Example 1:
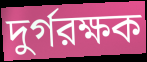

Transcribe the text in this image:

দুর্গরক্ষক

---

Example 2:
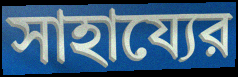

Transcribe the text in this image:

সাহায্যের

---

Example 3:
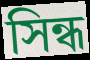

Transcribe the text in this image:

সিন্ধ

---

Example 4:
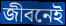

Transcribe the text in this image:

জীবনেই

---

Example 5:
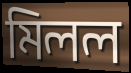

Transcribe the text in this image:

মিলল